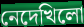
নেদেখিলো